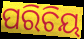
ପରିଚିୟ